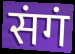
संगं